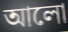
আলো